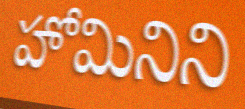
హోమినిని